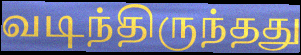
வடிந்திருந்தது